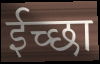
ईच्छा